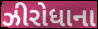
ઝીરોધાના